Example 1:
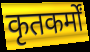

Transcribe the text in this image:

कृतकर्मों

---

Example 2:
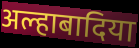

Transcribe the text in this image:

अल्हाबादिया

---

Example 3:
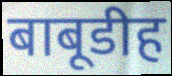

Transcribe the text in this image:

बाबूडीह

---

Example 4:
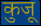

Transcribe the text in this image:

कुजू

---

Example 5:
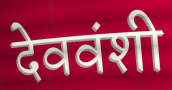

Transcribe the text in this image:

देववंशी